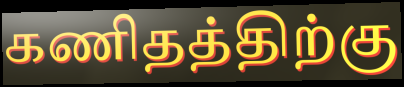
கணிதத்திற்கு